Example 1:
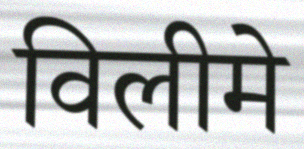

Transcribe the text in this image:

विलीमे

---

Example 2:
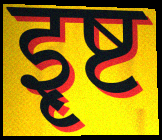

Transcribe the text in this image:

इृष्ट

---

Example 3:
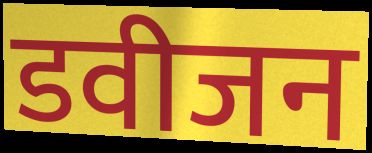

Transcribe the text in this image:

डवीजन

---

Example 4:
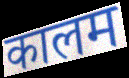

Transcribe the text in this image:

कालम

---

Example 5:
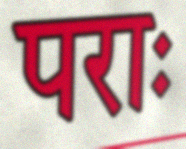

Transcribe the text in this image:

पराः